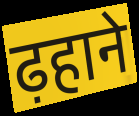
ढ़हाने